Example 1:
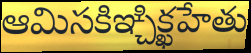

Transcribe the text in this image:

ఆమిసకిఞ్చిక్ఖహేతు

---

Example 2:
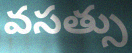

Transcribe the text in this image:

వసత్సు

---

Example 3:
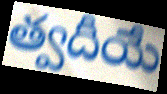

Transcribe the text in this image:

త్వదీయే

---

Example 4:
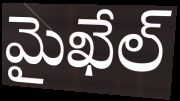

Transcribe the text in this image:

మైఖేల్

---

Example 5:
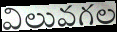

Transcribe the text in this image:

విలువగల